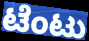
ಟೆಂಟು